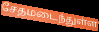
சேதமடைந்துள்ள